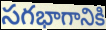
సగభాగానికి